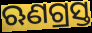
ଋଣଗ୍ରସ୍ତ